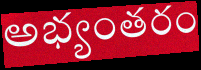
అభ్యంతరం